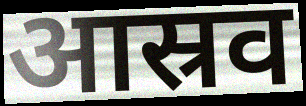
आस्रव